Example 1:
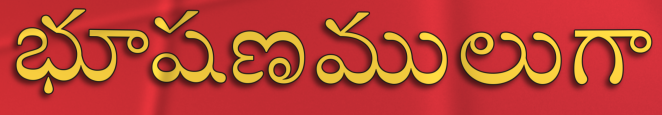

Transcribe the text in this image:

భూషణములుగా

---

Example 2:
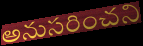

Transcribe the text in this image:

అనుసరించని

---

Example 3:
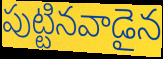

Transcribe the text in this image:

పుట్టినవాడైన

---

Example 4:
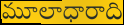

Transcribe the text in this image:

మూలాధారాది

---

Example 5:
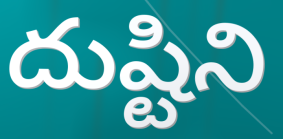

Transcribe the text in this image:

దుష్టిని